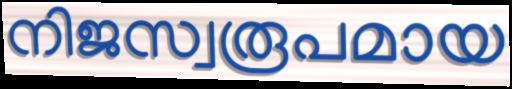
നിജസ്വരൂപമായ